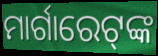
ମାର୍ଗାରେଟ୍‍ଙ୍କ